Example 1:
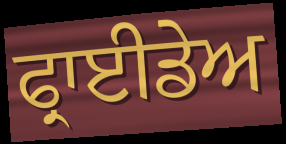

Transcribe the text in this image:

ਫ੍ਰਾਈਡੇਅ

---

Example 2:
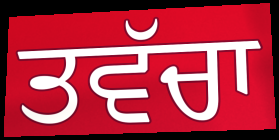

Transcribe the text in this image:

ਤਵੱਚਾ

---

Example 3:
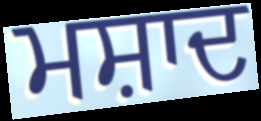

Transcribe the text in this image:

ਮਸ਼ਾਦ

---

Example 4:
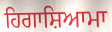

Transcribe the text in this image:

ਹਿਗਾਸ਼ਿਆਮਾ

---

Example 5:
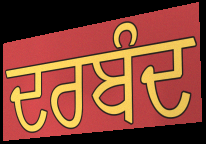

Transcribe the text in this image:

ਦਰਬੰਦ